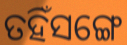
ତହିଁସଙ୍ଗେ